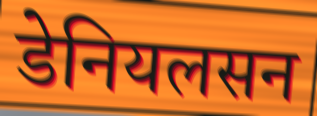
डेनियलसन